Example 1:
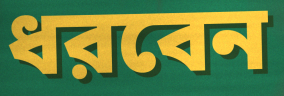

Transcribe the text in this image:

ধরবেন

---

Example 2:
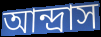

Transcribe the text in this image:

আন্দ্রাস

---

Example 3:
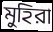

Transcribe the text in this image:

মুহিরা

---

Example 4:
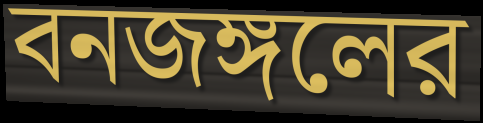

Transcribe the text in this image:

বনজঙ্গলের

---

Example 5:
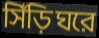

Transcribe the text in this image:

সিঁড়িঘরে